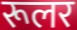
रूलर